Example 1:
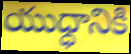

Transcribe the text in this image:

యుధ్ధానికి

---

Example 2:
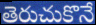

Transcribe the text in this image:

తెరుచుకొనే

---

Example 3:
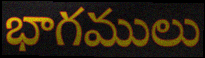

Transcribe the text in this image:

భాగములు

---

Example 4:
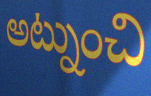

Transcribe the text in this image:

అట్నుంచి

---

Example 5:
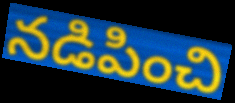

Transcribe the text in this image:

నడిపించి